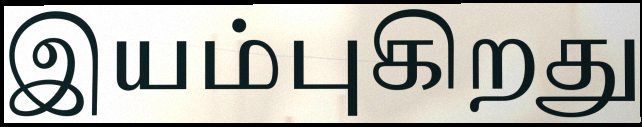
இயம்புகிறது